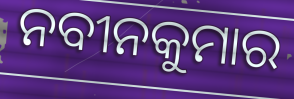
ନବୀନକୁମାର